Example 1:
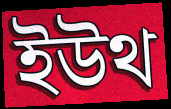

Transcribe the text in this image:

ইউথ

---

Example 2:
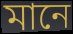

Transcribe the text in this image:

মানে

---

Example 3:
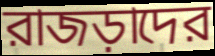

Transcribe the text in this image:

রাজড়াদের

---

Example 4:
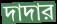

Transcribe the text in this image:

দাদার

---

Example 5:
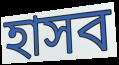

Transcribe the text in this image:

হাসব